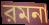
রমনা